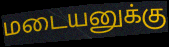
மடையனுக்கு